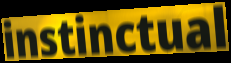
instinctual